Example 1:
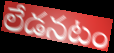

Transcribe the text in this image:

లేడనటం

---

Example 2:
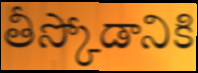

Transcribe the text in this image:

తీస్కోడానికి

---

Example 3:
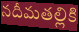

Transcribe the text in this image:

నదీమతల్లికి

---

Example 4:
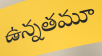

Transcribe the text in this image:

ఉన్నతమూ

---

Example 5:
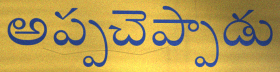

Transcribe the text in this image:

అప్పచెప్పాడు